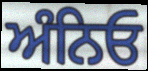
ਅੰਨਿਓ